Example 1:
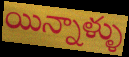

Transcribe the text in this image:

యిన్నాళ్ళు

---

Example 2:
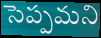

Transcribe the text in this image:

సెప్పమని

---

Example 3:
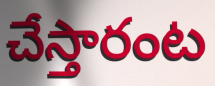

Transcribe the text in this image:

చేస్తారంట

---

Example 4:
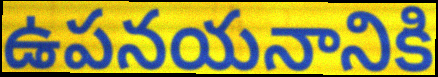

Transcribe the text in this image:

ఉపనయనానికి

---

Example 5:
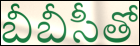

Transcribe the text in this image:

బీబీసీతో